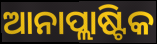
ଆନାପ୍ଲାଷ୍ଟିକ